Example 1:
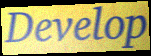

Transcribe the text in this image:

Develop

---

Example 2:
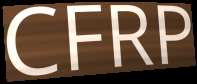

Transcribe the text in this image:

CFRP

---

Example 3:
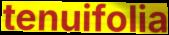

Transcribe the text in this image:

tenuifolia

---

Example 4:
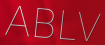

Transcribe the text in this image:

ABLV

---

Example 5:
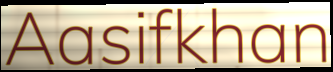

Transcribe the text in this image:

Aasifkhan